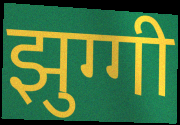
झुग्गी